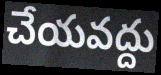
చేయవద్దు